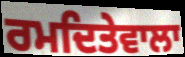
ਰਮਦਿਤੇਵਾਲਾ